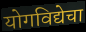
योगविद्येचा